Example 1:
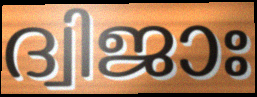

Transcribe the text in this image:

ദ്വിജാഃ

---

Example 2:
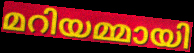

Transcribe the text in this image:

മറിയമ്മായി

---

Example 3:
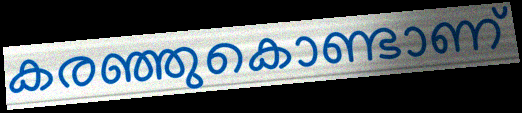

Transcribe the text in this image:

കരഞ്ഞുകൊണ്ടാണ്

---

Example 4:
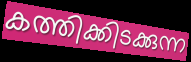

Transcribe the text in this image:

കത്തിക്കിടക്കുന്ന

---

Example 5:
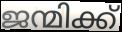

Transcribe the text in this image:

ജന്മിക്ക്